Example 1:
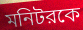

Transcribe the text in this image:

মনিটরকে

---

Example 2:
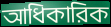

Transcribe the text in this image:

আধিকারিক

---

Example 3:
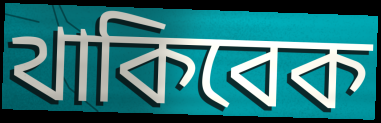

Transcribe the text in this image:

থাকিবেক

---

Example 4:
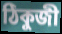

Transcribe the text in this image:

ঠিকুজী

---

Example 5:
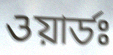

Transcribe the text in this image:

ওয়ার্ডঃ